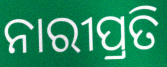
ନାରୀପ୍ରତି